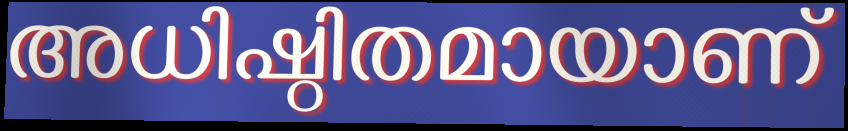
അധിഷ്ഠിതമായാണ്